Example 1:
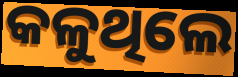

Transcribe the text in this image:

କଳୁଥିଲେ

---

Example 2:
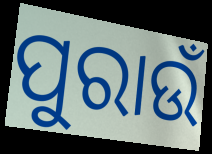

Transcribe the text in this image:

ପୁରାଉଁ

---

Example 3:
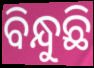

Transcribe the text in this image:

ବିନ୍ଧୁଛି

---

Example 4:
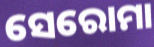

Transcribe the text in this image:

ସେରୋମା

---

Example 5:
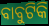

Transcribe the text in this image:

ବାବୁଟିକି